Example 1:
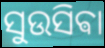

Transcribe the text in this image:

ସୁଉସିଵା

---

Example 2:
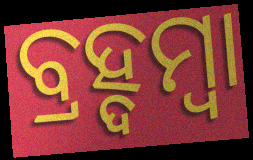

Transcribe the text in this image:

ବ୍ରହ୍ଦମ୍ବା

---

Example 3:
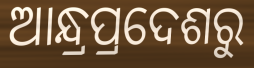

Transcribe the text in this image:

ଆନ୍ଧ୍ରପ୍ରଦେଶରୁ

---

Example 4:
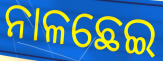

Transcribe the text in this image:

ନାଳଛେଇ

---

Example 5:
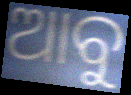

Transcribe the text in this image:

ଆବୁ